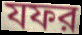
যফর